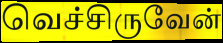
வெச்சிருவேன்